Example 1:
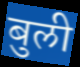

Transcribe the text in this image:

बुली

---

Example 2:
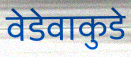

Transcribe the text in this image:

वेडेवाकुडे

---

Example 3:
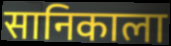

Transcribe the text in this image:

सानिकाला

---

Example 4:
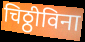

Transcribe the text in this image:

चिठ्ठीविना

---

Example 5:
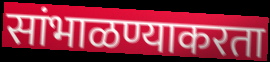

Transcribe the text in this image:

सांभाळण्याकरता